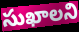
సుఖాలని